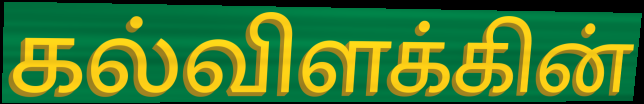
கல்விளக்கின்